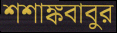
শশাঙ্কবাবুর